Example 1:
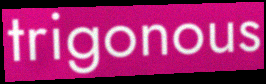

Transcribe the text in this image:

trigonous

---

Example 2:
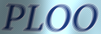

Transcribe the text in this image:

PLOO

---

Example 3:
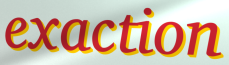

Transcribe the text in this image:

exaction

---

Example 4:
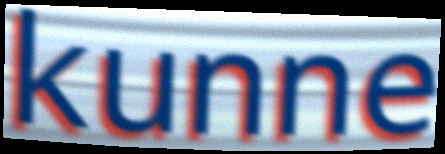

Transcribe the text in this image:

kunne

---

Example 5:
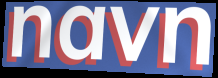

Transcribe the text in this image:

navn